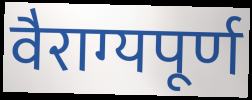
वैराग्यपूर्ण